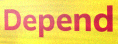
Depend